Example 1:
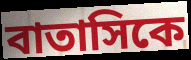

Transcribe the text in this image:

বাতাসিকে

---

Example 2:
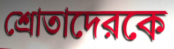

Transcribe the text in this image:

শ্রোতাদেরকে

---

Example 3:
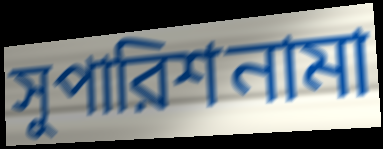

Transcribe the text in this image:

সুপারিশনামা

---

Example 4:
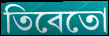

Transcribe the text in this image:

তিবেতো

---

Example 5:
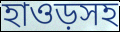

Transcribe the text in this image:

হাওড়সহ